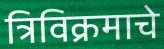
त्रिविक्रमाचे